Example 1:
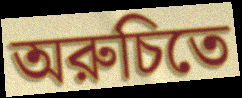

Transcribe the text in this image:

অরুচিতে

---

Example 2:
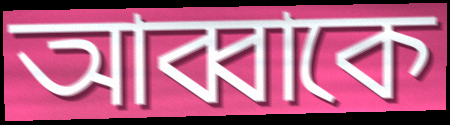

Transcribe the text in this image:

আব্বাকে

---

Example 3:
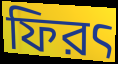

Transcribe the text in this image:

ফিরৎ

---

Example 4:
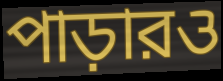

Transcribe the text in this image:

পাড়ারও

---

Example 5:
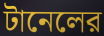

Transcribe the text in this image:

টানেলের